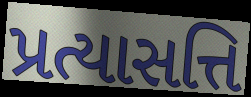
પ્રત્યાસત્તિ